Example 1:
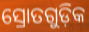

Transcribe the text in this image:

ସ୍ରୋତଗୁଡ଼ିକ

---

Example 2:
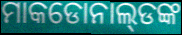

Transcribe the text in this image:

ମାକଡୋନାଲ୍‍ଡଙ୍କ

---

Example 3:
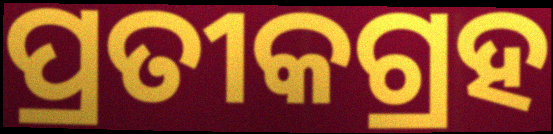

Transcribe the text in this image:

ପ୍ରତୀକଗ୍ରହ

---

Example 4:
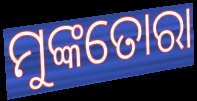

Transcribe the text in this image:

ମୁଙ୍କତୋରା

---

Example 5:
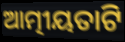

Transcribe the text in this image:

ଆତ୍ମୀୟତାଟି